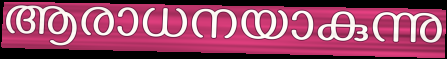
ആരാധനയാകുന്നു